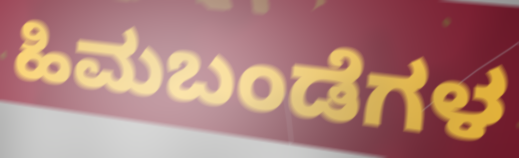
ಹಿಮಬಂಡೆಗಳ